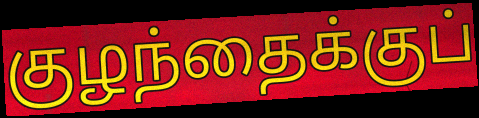
குழந்தைக்குப்